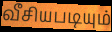
வீசியபடியும்